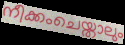
നീക്കംചെയ്താലും